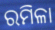
ରମିଳା